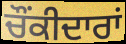
ਚੌਂਕੀਦਾਰਾਂ